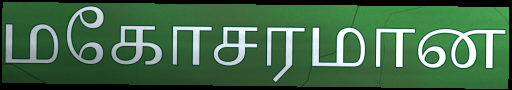
மகோசரமான